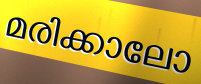
മരിക്കാലോ